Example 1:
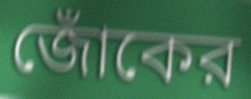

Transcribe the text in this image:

জোঁকের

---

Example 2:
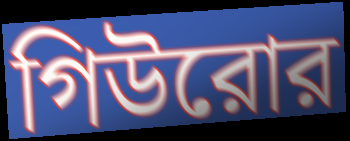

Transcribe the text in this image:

গিউরোর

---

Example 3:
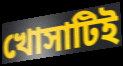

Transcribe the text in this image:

খোসাটিই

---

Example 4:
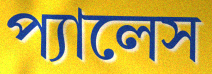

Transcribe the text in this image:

প্যালেস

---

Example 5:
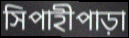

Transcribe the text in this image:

সিপাহীপাড়া